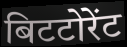
बिटटोरेंट